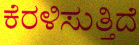
ಕೆರಳಿಸುತ್ತಿದೆ